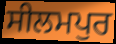
ਸੀਲਮਪੁਰ